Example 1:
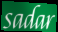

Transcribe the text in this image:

sadar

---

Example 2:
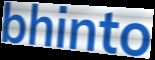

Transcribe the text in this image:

bhinto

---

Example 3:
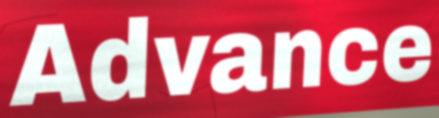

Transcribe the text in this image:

Advance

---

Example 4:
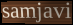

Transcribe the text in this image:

samjavi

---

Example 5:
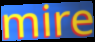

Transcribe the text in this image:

mire